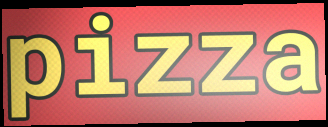
pizza